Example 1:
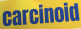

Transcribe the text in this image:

carcinoid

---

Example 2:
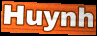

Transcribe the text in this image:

Huynh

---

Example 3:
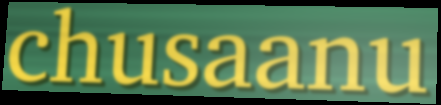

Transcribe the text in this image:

chusaanu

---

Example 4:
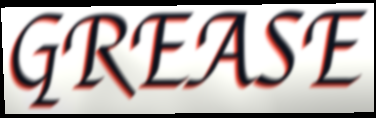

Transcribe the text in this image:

GREASE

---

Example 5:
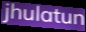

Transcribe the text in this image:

jhulatun